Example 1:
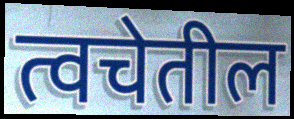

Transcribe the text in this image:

त्वचेतील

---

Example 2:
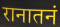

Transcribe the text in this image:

रानातनं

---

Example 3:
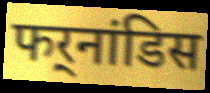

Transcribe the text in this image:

फर्नांडिस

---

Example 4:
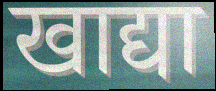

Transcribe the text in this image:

खाद्या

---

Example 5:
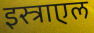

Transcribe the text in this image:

इस्त्राएल